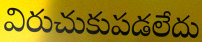
విరుచుకుపడలేదు